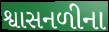
શ્વાસનળીના